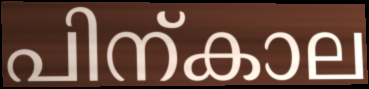
പിന്കാല